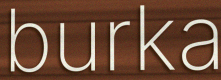
burka